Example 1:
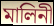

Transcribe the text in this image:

মালিনী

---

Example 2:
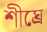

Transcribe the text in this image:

শীঘ্ৰে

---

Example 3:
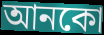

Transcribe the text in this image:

আনকো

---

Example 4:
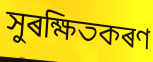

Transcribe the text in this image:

সুৰক্ষিতকৰণ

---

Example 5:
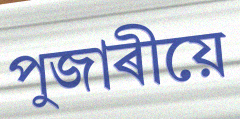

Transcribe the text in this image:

পুজাৰীয়ে